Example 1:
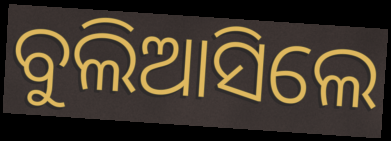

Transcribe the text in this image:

ବୁଲିଆସିଲେ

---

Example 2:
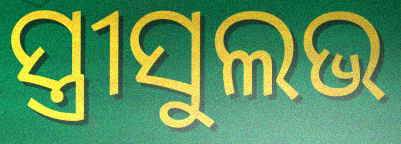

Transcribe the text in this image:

ସ୍ତ୍ରୀସୁଲଭ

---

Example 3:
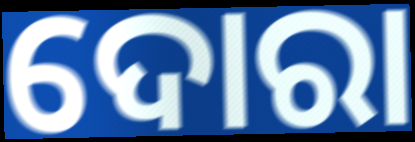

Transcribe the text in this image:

ଦୋରା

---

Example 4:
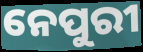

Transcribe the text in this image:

ନେପୁରୀ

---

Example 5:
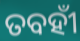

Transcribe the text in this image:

ତବହୀଁ